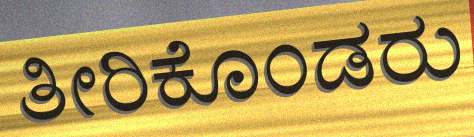
ತೀರಿಕೊಂಡರು